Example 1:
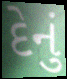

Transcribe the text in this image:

દેનું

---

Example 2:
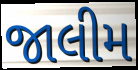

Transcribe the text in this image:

જાલીમ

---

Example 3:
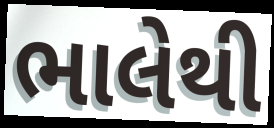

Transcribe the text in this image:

ભાલેથી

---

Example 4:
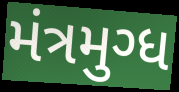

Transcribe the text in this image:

મંત્રમુગ્ધ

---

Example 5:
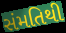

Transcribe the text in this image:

સંમતિથી